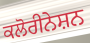
ਕਲੋਰੀਨੇਸ਼ਨ